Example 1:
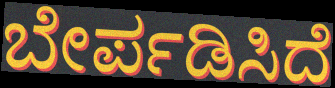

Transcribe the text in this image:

ಬೇರ್ಪಡಿಸಿದೆ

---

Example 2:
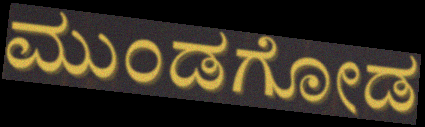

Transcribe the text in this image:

ಮುಂಡಗೋಡ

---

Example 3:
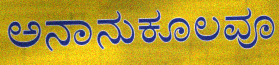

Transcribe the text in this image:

ಅನಾನುಕೂಲವೂ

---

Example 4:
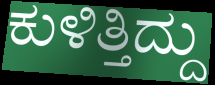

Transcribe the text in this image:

ಕುಳಿತ್ತಿದ್ದು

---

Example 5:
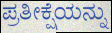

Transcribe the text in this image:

ಪ್ರತೀಕ್ಷೆಯನ್ನು